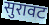
सुरावट